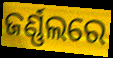
ଜର୍ଣ୍ଣଲରେ